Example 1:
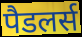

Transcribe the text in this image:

पैडलर्स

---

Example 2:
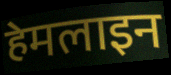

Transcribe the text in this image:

हेमलाइन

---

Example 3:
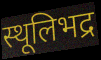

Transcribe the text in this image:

स्थूलिभद्र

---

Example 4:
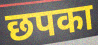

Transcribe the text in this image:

छपका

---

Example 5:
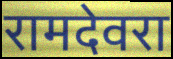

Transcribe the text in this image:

रामदेवरा